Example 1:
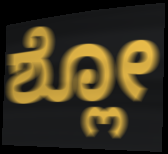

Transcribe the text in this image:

ಶ್ಲೋ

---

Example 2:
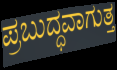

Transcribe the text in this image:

ಪ್ರಬುದ್ಧವಾಗುತ್ತ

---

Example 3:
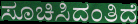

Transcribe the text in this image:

ಸೂಚಿಸಿದಂತಿದೆ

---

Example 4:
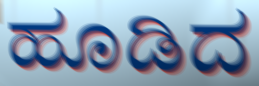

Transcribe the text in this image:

ಹೂಡಿದ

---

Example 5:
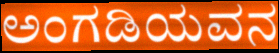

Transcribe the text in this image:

ಅಂಗಡಿಯವನ